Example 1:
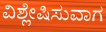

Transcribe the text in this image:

ವಿಶ್ಲೇಷಿಸುವಾಗ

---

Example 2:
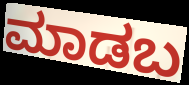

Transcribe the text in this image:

ಮಾಡಬ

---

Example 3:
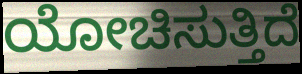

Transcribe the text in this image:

ಯೋಚಿಸುತ್ತಿದೆ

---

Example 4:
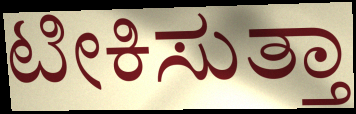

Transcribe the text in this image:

ಟೀಕಿಸುತ್ತಾ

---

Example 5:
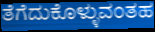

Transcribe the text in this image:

ತೆಗೆದುಕೊಳ್ಳುವಂತಹ